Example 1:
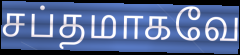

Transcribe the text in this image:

சப்தமாகவே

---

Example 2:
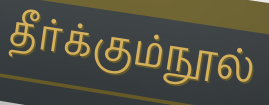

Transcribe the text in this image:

தீர்க்கும்நூல்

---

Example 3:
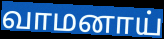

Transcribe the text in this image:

வாமனாய்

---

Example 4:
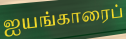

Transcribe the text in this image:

ஐயங்காரைப்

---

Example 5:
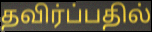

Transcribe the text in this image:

தவிர்ப்பதில்